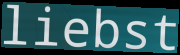
liebst